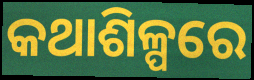
କଥାଶିଳ୍ପରେ